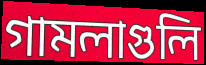
গামলাগুলি